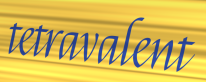
tetravalent